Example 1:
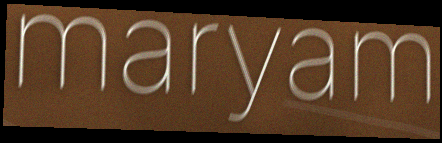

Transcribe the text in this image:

maryam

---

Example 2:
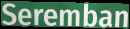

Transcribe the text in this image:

Seremban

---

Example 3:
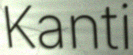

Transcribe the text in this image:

Kanti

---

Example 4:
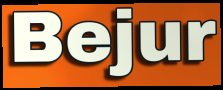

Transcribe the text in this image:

Bejur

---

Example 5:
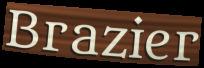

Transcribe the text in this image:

Brazier